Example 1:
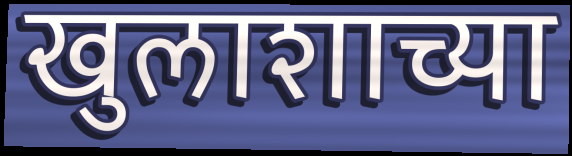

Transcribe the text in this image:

खुलाशाच्या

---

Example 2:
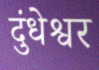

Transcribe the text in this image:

दुंधेश्वर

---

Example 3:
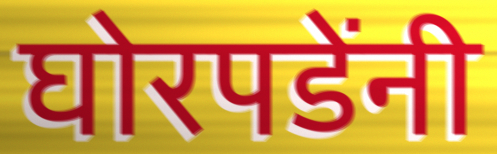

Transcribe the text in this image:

घोरपडेंनी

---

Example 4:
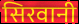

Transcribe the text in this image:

सिरवानी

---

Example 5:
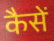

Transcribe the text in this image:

कैसें